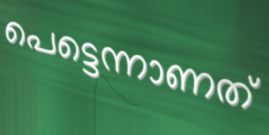
പെട്ടെന്നാണത്